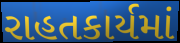
રાહતકાર્યમાં